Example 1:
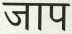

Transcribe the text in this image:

जाप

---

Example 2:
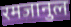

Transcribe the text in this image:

रमजानुल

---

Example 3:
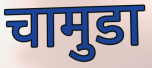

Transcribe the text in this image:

चामुडा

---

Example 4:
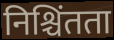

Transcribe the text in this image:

निश्चिंतता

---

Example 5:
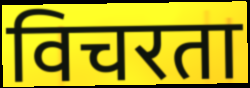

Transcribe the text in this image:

विचरता